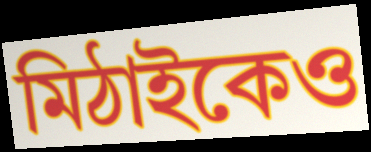
মিঠাইকেও